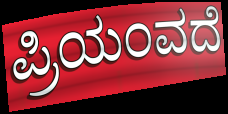
ಪ್ರಿಯಂವದೆ